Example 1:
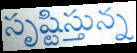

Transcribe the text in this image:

సృష్టిస్తున్న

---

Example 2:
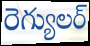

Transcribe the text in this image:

రెగ్యులర్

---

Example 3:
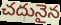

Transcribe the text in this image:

చదునైన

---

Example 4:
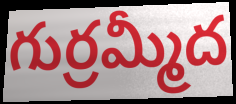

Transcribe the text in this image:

గుర్రమ్మీద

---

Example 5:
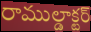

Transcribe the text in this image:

రాముల్డాక్టర్